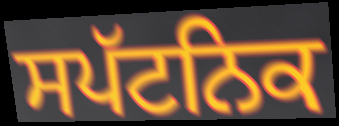
ਸਪੱਟਨਿਕ